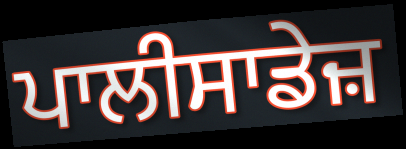
ਪਾਲੀਸਾਡੇਜ਼